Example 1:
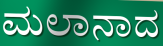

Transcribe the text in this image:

ಮಲಾನಾದ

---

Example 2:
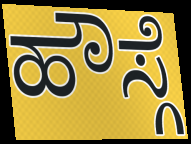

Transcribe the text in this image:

ಹೌಸ್ಗೆ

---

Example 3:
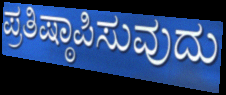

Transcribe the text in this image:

ಪ್ರತಿಷ್ಠಾಪಿಸುವುದು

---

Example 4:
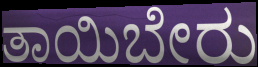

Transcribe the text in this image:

ತಾಯಿಬೇರು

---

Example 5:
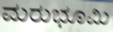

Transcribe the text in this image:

ಮರುಭೂಮಿ